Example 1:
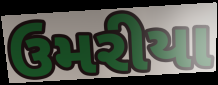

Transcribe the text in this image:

ઉમરીયા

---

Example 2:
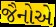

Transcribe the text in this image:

જૈનોએ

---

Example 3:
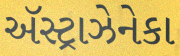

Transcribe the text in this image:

ઍસ્ટ્રાઝેનેકા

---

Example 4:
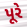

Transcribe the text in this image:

પૂરે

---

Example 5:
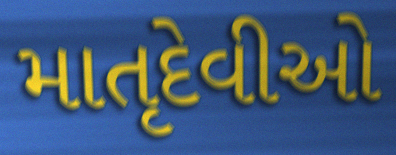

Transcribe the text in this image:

માતૃદેવીઓ